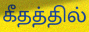
கீதத்தில்